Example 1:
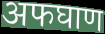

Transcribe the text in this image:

अफघाण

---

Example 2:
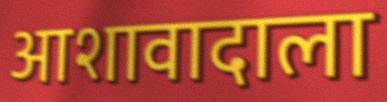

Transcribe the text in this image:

आशावादाला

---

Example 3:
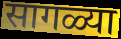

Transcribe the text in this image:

सागळ्या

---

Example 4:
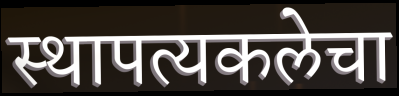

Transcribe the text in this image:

स्थापत्यकलेचा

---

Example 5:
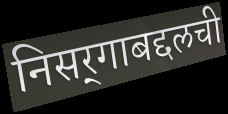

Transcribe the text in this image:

निसर्गाबद्दलची